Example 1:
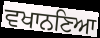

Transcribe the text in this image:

ਵਖਾਨਣਿਆ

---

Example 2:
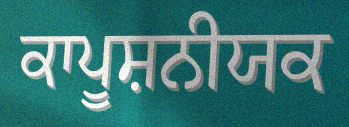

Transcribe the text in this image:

ਕਾਪੂਸ਼ਨੀਯਕ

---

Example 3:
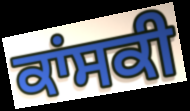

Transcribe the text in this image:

ਕਾਂਸਕੀ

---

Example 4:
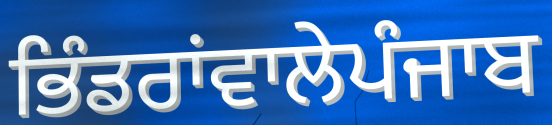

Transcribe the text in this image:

ਭਿੰਡਰਾਂਵਾਲੇਪੰਜਾਬ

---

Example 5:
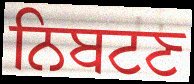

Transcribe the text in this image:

ਨਿਬਟਣ